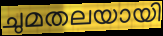
ചുമതലയായി